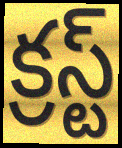
క్రస్ట్